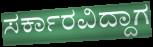
ಸರ್ಕಾರವಿದ್ದಾಗ